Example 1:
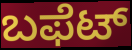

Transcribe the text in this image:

ಬಫೆಟ್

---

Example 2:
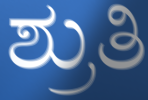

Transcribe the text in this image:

ಶ್ರುತಿ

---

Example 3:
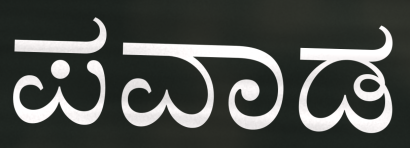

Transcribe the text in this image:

ಪವಾಡ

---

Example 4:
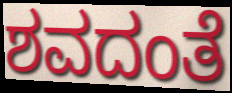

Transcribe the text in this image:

ಶವದಂತೆ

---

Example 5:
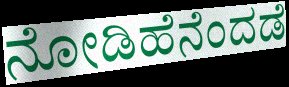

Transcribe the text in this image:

ನೋಡಿಹೆನೆಂದಡೆ